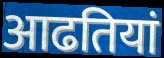
आढतियां